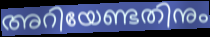
അറിയേണ്ടതിനും